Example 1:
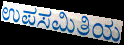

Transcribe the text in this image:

ಉಪಸಮಿತಿಯ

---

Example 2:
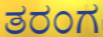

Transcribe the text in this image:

ತರಂಗ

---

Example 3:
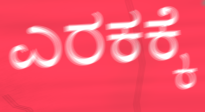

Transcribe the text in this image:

ಎರಕಕ್ಕೆ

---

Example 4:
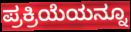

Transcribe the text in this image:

ಪ್ರಕ್ರಿಯೆಯನ್ನೂ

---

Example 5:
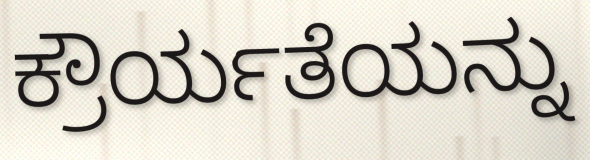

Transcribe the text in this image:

ಕ್ರೌರ್ಯತೆಯನ್ನು